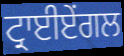
ਟ੍ਰਾਈਏਂਗਲ